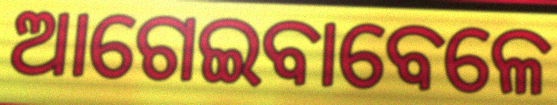
ଆଗେଇବାବେଳେ